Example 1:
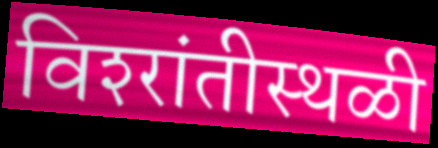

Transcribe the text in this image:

विश्रांतीस्थळी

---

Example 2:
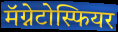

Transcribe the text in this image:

मॅग्नेटोस्फियर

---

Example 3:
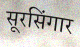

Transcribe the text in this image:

सूरसिंगार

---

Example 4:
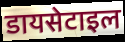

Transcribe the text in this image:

डायसेटाइल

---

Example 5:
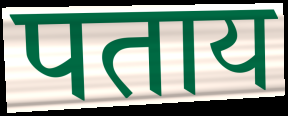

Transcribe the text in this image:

पताय